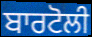
ਬਾਰਟੋਲੀ